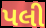
પલી